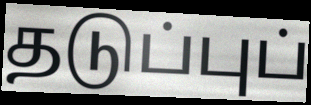
தடுப்புப்